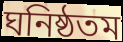
ঘনিষ্ঠতম